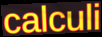
calculi